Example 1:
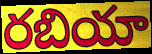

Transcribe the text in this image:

రబియా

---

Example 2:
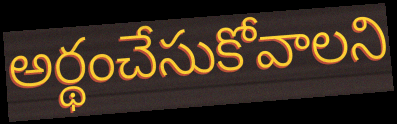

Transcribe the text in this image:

అర్థంచేసుకోవాలని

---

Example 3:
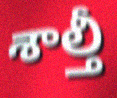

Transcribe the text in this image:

శాల్తీ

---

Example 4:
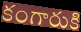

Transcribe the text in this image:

కంగారుకి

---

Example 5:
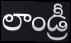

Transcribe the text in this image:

లాండ్రీ